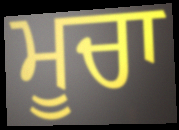
ਮੂਚਾ